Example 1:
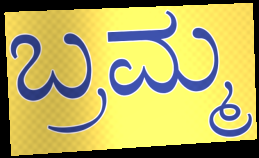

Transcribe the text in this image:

ಬ್ರಮ್ಮ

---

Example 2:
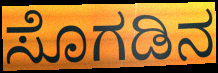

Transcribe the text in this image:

ಸೊಗಡಿನ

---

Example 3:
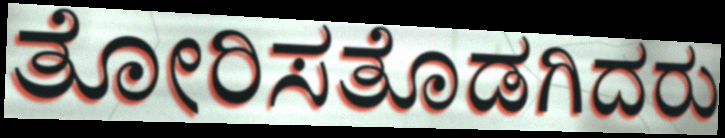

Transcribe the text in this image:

ತೋರಿಸತೊಡಗಿದರು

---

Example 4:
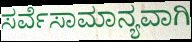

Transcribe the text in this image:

ಸರ್ವೆಸಾಮಾನ್ಯವಾಗಿ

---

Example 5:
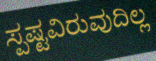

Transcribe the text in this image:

ಸ್ಪಷ್ಟವಿರುವುದಿಲ್ಲ